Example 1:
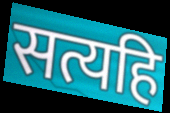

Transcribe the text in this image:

सत्यहि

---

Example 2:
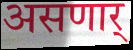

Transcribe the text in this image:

असणार्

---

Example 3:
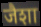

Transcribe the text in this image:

जैशा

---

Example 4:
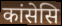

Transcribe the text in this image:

कांसेसि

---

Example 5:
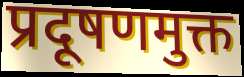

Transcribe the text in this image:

प्रदूषणमुक्त